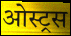
ओस्ट्रस